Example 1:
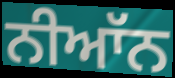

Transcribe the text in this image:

ਨੀਆੱਨ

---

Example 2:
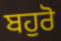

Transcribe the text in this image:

ਬਹੁਰੋ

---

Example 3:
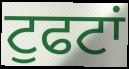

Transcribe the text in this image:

ਟੁਫਟਾਂ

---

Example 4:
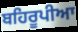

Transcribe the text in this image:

ਬਹਿਰੂਪੀਆ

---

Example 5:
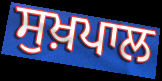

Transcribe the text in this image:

ਸੁਖ਼ਪਾਲ